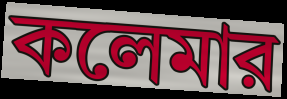
কলেমার